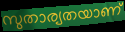
സുതാര്യതയാണ്